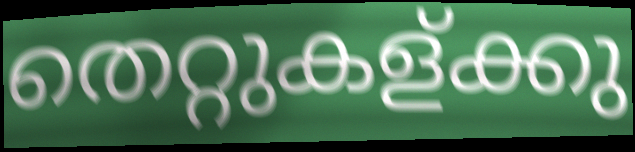
തെറ്റുകള്ക്കു